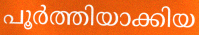
പൂർത്തിയാക്കിയ